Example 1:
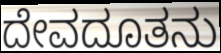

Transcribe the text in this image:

ದೇವದೂತನು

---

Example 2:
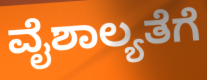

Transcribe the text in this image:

ವೈಶಾಲ್ಯತೆಗೆ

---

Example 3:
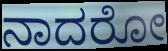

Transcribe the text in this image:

ನಾದರೋ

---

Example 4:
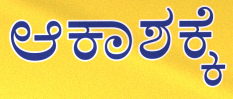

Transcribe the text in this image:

ಆಕಾಶಕ್ಕೆ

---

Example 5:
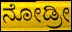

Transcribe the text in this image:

ನೋಡ್ರೀ